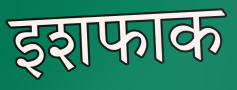
इशफाक